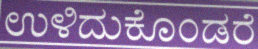
ಉಳಿದುಕೊಂಡರೆ